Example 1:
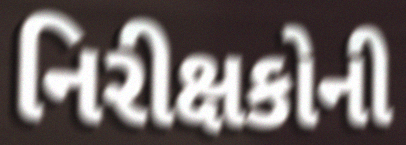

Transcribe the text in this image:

નિરીક્ષકોની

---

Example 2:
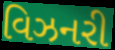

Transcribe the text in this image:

વિઝનરી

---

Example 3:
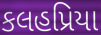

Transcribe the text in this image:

કલહપ્રિયા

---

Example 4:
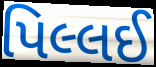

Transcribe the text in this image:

પિલ્લઈ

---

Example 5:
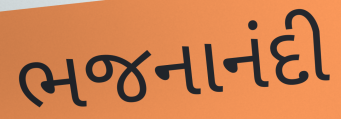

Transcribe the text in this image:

ભજનાનંદી